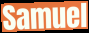
Samuel